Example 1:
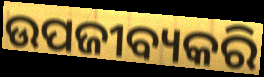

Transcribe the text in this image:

ଉପଜୀବ୍ୟକରି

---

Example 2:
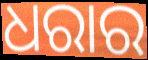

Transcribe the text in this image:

ଧରାର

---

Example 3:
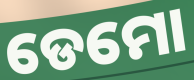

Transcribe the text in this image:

ଡେମୋ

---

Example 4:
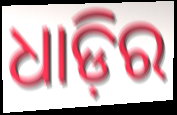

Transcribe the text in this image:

ଧାଡ଼ିର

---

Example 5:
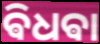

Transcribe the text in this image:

ଵିଧଵା